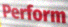
Perform